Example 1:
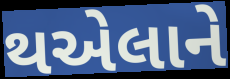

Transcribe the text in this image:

થએલાને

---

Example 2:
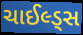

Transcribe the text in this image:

ચાઈલ્ડ્સ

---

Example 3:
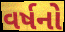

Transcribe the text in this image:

વર્ષનો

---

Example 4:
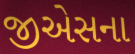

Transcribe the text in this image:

જીએસના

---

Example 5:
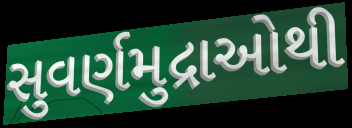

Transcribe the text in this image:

સુવર્ણમુદ્રાઓથી